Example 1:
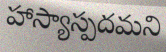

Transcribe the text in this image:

హాస్యాస్పదమని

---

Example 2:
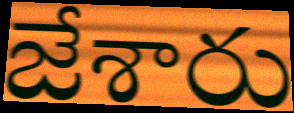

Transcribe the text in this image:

జేశారు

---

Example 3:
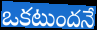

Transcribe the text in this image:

ఒకటుందనే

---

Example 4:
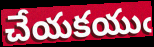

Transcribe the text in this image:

చేయకయుఁ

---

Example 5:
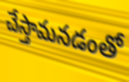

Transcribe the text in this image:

చేస్తామనడంతో